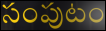
సంపుటం